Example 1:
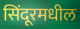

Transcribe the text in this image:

सिंदूरमधील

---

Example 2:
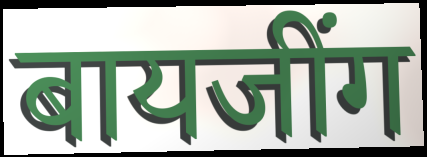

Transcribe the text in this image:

बायजींग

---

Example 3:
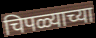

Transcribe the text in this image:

चिपळ्याच्या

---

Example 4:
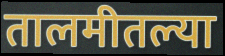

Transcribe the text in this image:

तालमीतल्या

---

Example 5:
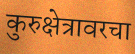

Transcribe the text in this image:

कुरुक्षेत्रावरचा